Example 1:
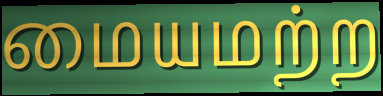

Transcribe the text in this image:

மையமற்ற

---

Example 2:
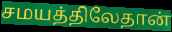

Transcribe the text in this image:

சமயத்திலேதான்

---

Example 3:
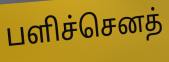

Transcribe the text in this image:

பளிச்செனத்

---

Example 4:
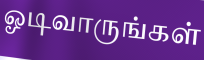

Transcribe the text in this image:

ஓடிவாருங்கள்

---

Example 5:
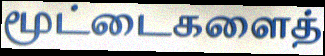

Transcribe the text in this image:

மூட்டைகளைத்